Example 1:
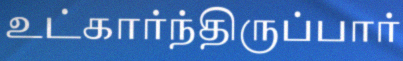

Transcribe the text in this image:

உட்கார்ந்திருப்பார்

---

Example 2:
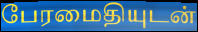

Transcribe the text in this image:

பேரமைதியுடன்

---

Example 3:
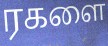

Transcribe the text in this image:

ரகளை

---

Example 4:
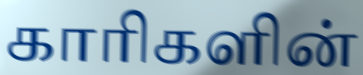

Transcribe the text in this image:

காரிகளின்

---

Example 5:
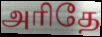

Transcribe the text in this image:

அரிதே